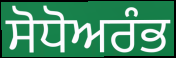
ਸੋਧੋਅਰੰਭ